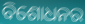
ବିଶୋଧନର